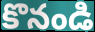
కొనండి